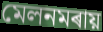
মেলনমৰায়